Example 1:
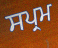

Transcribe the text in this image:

ਸਪ੍ਰਮ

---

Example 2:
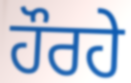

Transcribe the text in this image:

ਹੌਰਹੇ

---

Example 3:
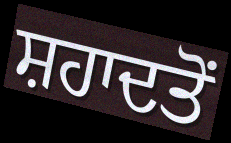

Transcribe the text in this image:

ਸ਼ਹਾਦਤੋਂ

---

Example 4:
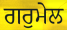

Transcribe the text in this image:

ਗਰੁਮੇਲ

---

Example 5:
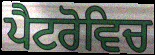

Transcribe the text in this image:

ਪੈਟਰੋਵਿਚ